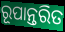
ରୂପାନ୍ତରିତ